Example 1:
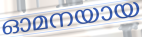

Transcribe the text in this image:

ഓമനയായ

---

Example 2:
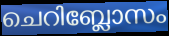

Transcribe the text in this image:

ചെറിബ്ലോസം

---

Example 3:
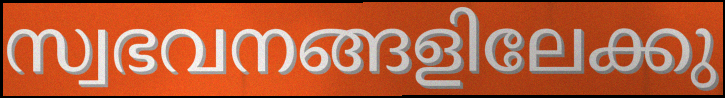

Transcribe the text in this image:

സ്വഭവനങ്ങളിലേക്കു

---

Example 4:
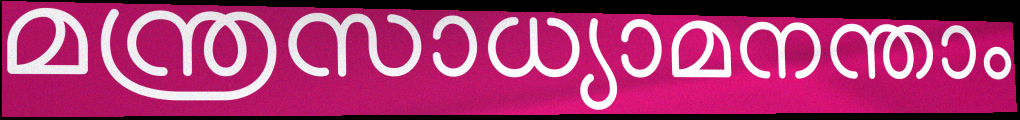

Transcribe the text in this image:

മന്ത്രസാധ്യാമനന്താം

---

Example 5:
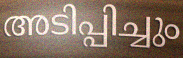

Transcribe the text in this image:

അടിപ്പിച്ചും